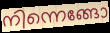
നിന്നെങ്ങോ